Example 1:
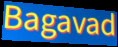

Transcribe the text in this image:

Bagavad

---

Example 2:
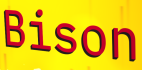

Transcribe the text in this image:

Bison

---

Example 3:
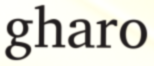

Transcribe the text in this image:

gharo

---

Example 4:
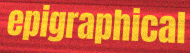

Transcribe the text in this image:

epigraphical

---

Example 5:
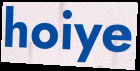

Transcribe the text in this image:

hoiye